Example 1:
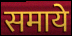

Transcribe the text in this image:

समाये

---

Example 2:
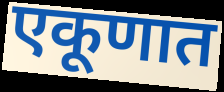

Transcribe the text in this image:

एकूणात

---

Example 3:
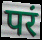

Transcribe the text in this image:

परं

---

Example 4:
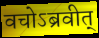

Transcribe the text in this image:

वचोऽब्रवीत्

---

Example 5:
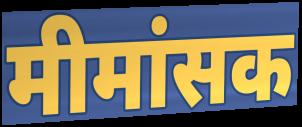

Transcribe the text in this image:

मीमांसक